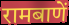
रामबाणें